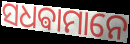
ସଧଵାମାନେ